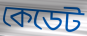
কেডেট